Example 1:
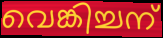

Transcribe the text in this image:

വെങ്കിച്ചന്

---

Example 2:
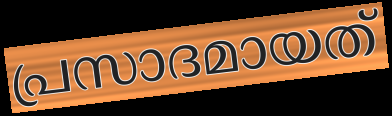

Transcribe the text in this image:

പ്രസാദമായത്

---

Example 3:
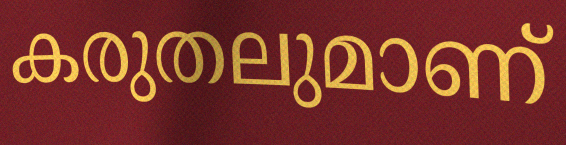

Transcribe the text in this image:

കരുതലുമാണ്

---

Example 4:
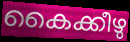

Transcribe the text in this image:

കൈക്കീഴു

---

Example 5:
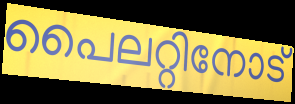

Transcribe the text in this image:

പൈലറ്റിനോട്